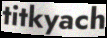
titkyach